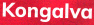
Kongalva